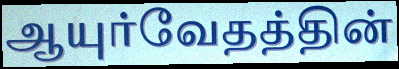
ஆயுர்வேதத்தின்